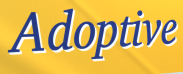
Adoptive